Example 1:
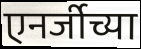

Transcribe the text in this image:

एनर्जीच्या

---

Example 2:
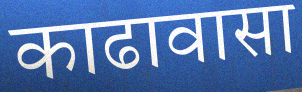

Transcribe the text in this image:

काढावासा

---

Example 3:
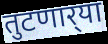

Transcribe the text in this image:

तुटणार्‍या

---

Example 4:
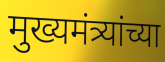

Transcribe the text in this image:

मुख्यमंत्र्यांच्या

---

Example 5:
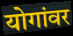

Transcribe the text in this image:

योगांवर